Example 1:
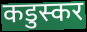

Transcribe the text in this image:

कडुस्कर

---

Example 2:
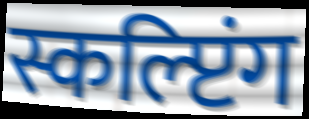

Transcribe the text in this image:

स्कल्प्टिंग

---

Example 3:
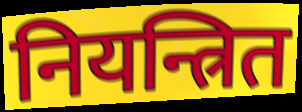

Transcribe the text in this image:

नियन्त्रित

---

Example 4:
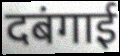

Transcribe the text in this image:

दबंगाई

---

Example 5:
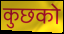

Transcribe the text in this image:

कुछको